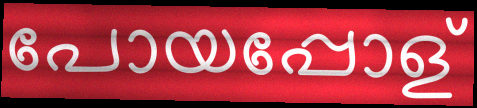
പോയപ്പോള്